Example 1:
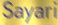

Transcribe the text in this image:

Sayari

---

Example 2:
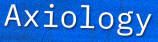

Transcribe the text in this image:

Axiology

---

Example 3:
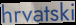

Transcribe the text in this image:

hrvatski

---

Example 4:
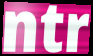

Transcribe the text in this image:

ntr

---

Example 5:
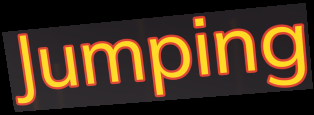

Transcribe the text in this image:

Jumping